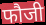
फौजी